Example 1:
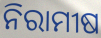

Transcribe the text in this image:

ନିରାମୀଷ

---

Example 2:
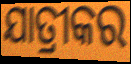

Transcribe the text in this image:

ଯାତ୍ରୀକର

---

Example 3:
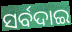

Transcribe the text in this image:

ସର୍ବଦାଇ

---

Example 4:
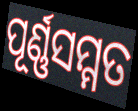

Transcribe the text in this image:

ପୂର୍ଣ୍ଣସମ୍ମତ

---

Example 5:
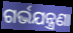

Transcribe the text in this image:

ଗର୍ଭଯନ୍ତ୍ରଣା